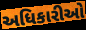
અધિકારીઓ